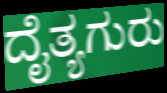
ದೈತ್ಯಗುರು